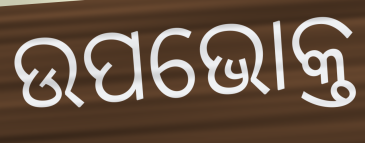
ଉପଭୋକ୍ତ